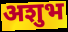
अशुभ